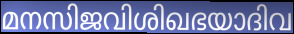
മനസിജവിശിഖഭയാദിവ